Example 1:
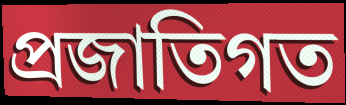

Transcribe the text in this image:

প্রজাতিগত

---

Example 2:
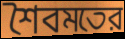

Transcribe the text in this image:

শৈবমতের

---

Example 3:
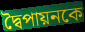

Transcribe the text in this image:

দ্বৈপায়নকে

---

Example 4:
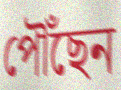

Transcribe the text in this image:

পৌঁছেন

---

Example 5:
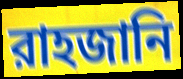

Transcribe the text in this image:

রাহজানি